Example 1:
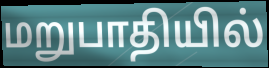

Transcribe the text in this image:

மறுபாதியில்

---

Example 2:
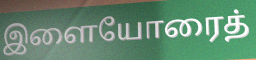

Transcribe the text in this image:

இளையோரைத்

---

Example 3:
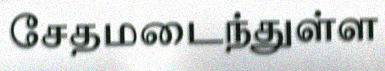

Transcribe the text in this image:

சேதமடைந்துள்ள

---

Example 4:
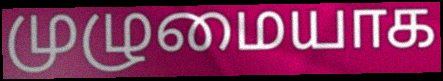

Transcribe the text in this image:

முழுமையாக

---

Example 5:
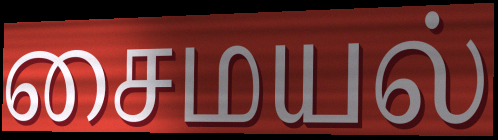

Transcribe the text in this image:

சைமயல்